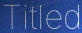
Titled